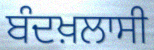
ਬੰਦਖ਼ਲਾਸੀ